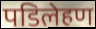
पडिलेहण